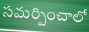
సమర్పించాలో